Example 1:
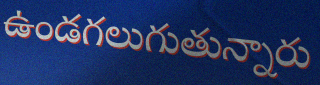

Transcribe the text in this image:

ఉండగలుగుతున్నారు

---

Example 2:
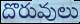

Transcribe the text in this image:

దొరువులు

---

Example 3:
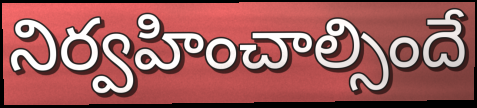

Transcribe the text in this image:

నిర్వహించాల్సిందే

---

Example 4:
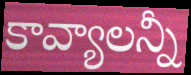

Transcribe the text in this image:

కావ్యాలన్నీ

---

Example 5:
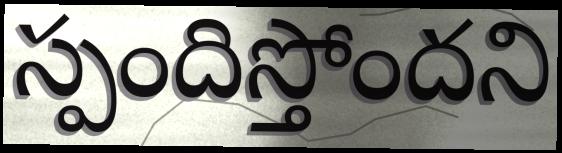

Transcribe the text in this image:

స్పందిస్తోందని